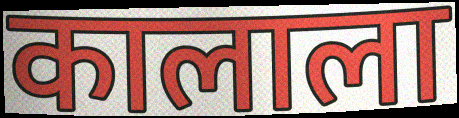
कालाला